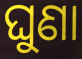
ଘୁଣା